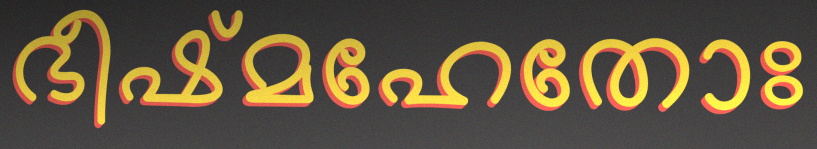
ഭീഷ്മഹേതോഃ